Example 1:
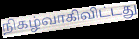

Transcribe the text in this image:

நிகழ்வாகிவிட்டது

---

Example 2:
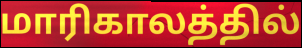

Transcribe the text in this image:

மாரிகாலத்தில்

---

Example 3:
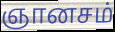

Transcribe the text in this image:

ஞானசம்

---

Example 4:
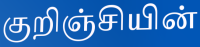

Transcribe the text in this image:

குறிஞ்சியின்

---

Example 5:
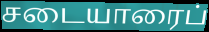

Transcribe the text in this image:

சடையாரைப்